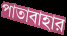
পাতাবাহার